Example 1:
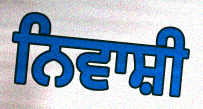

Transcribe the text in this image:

ਨਿਵਾਸ਼ੀ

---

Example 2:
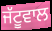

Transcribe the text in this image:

ਜੱਟੂਵਾਲ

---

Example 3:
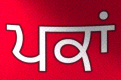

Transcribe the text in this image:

ਪਕਾਂ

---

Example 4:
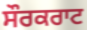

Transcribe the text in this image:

ਸੌਰਕਰਾਟ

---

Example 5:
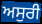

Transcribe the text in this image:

ਅਸੁਰੀ